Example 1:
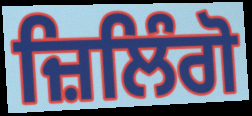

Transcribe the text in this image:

ਜ਼ਿਲਿੰਗੋ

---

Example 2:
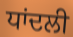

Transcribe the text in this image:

ਧਾਂਦਲੀ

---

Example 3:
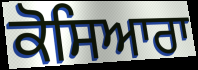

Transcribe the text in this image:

ਕੋਸਿਆਰਾ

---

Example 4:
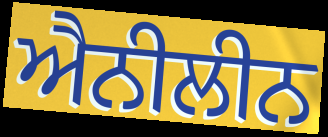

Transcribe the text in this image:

ਐਨੀਲੀਨ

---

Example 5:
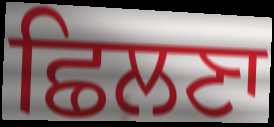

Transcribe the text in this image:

ਛਿਲਣਾ